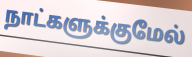
நாட்களுக்குமேல்